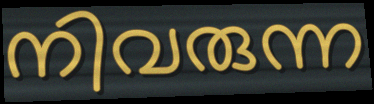
നിവരുന്ന